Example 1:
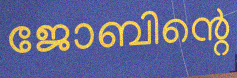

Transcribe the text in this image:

ജോബിന്റെ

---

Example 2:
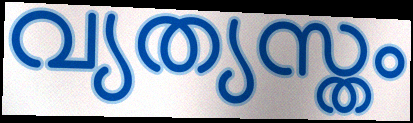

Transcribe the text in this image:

വ്യത്യസ്തം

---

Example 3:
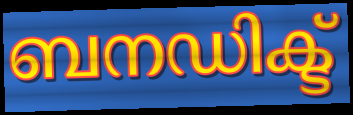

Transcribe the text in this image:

ബനഡിക്ട്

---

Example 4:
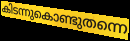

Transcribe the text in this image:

കിടന്നുകൊണ്ടുതന്നെ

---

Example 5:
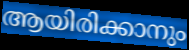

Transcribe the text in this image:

ആയിരിക്കാനും